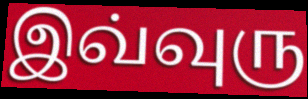
இவ்வுரு